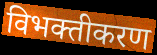
विभक्तीकरण